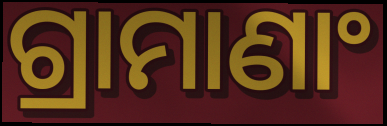
ଗ୍ରାମାଣାଂ